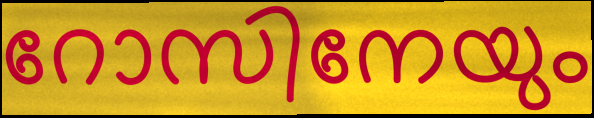
റോസിനേയും